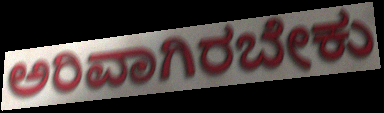
ಅರಿವಾಗಿರಬೇಕು